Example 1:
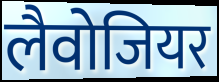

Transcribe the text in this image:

लैवोजियर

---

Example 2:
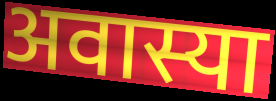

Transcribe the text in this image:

अवास्या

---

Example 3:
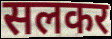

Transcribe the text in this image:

सलकर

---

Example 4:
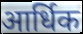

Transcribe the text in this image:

आर्धिक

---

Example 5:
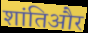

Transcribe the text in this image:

शांतिऔर